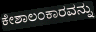
ಕೇಶಾಲಂಕಾರವನ್ನು